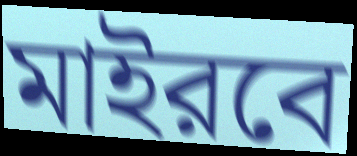
মাইরবে